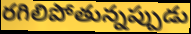
రగిలిపోతున్నప్పుడు